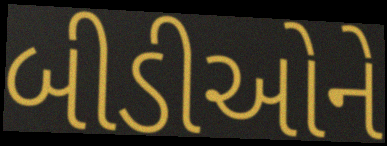
બીડીઓને